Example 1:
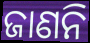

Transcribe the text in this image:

ଜାଣନି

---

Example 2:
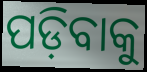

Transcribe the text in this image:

ପଡ଼ିବାକୁ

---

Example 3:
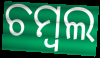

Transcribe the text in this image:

ଚମ୍ବଲ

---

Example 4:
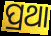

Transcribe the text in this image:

ପ୍ରଥା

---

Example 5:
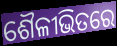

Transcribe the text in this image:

ଶୈଳୀଭିତରେ